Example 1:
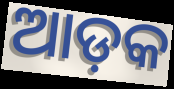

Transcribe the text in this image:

ଆଡ଼କ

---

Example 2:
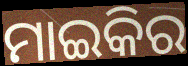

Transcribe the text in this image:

ମାଇକିର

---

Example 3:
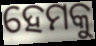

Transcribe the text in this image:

ହେମକୁ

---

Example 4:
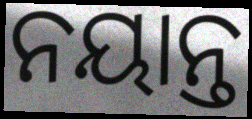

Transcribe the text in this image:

ନୟାନ୍ତ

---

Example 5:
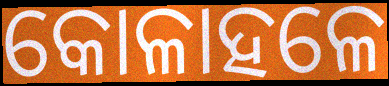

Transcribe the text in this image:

କୋଳାହଳେ